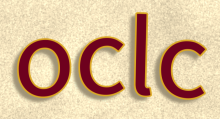
oclc